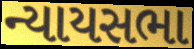
ન્યાયસભા